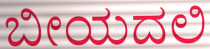
ಬೀಯದಲಿ